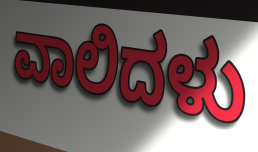
ವಾಲಿದಳು